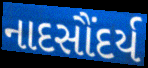
નાદસૌંદર્ય